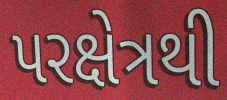
પરક્ષેત્રથી